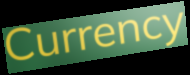
Currency